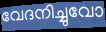
വേദനിച്ചുവോ